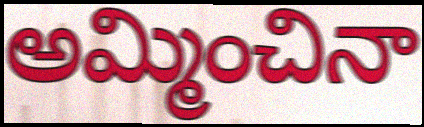
అమ్మించినా